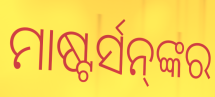
ମାଷ୍ଟର୍ସନ୍‌ଙ୍କର